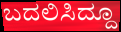
ಬದಲಿಸಿದ್ದೂ